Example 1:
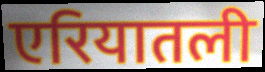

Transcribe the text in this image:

एरियातली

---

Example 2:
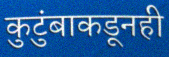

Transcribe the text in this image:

कुटुंबाकडूनही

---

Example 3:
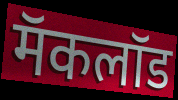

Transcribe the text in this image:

मॅकलॉड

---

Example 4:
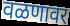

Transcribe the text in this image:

वळणावर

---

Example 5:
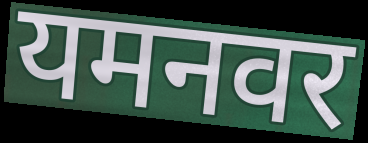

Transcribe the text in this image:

यमनवर